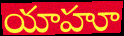
యాహూ